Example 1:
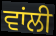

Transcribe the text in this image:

ਵਾਂਲੀ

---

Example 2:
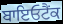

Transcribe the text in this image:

ਬਾਇਓਟੈਂਕ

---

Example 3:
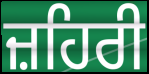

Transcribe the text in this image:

ਜ਼ਹਿਰੀ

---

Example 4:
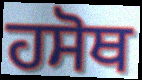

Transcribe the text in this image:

ਹਸੋਥ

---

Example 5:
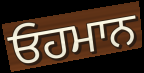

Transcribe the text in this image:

ਓਹਮਾਨ